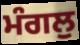
ਮੰਗਲੁ